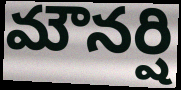
మౌనర్షి